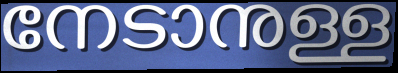
നേടാനുള്ള